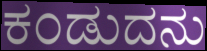
ಕಂಡುದನು